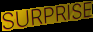
SURPRISE